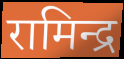
रामिन्द्र